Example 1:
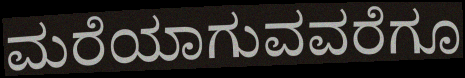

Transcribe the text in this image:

ಮರೆಯಾಗುವವರೆಗೂ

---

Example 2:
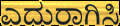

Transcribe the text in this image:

ಎದುರಾಗಿಸಿ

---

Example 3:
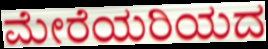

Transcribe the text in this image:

ಮೇರೆಯರಿಯದ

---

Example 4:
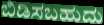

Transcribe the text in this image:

ಬಿಡಿಸಬಹುದು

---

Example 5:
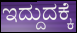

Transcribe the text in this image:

ಇದ್ದುದಕ್ಕೆ